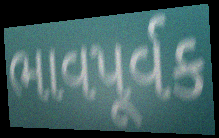
ભાવપૂર્વક